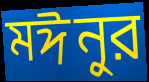
মঈনুর